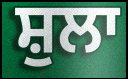
ਸ਼ੁਲਾ